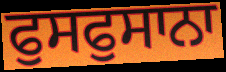
ਫੁਸਫੁਸਾਨਾ